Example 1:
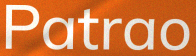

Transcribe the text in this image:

Patrao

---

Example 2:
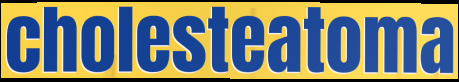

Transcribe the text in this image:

cholesteatoma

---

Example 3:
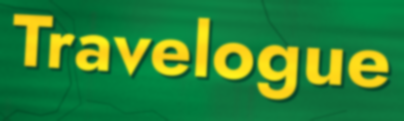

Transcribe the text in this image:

Travelogue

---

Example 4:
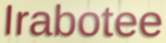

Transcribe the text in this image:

Irabotee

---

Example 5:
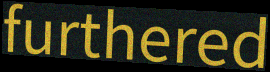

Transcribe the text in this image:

furthered